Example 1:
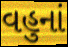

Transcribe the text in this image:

વહુનાં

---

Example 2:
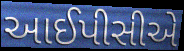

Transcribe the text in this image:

આઈપીસીએ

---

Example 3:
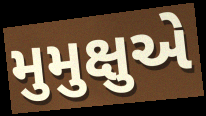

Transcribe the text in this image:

મુમુક્ષુએ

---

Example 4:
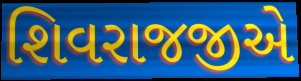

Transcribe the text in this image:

શિવરાજજીએ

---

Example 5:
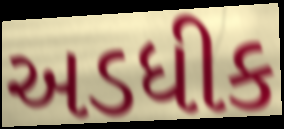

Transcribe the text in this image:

અડધીક